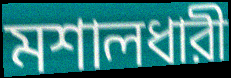
মশালধারী